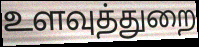
உளவுத்துறை